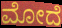
ಮೋದೆ